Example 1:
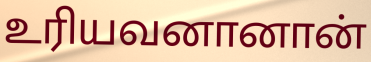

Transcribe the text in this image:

உரியவனானான்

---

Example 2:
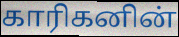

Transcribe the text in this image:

காரிகனின்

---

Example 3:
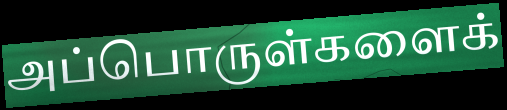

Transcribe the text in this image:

அப்பொருள்களைக்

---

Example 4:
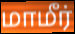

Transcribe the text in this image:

மாமீர்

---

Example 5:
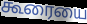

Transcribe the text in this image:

கூரையை